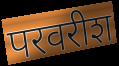
परवरीश